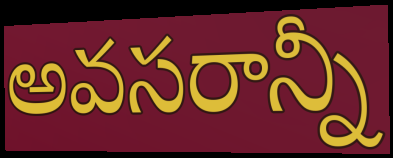
అవసరాన్నీ